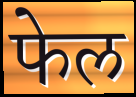
फेल